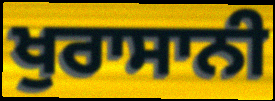
ਖੁਰਾਸਾਨੀ